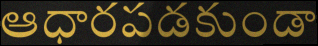
ఆధారపడకుండా